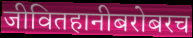
जीवितहानीबरोबरच